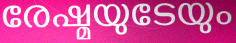
രേഷ്മയുടേയും